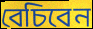
বেচিবেন